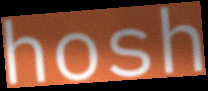
hosh